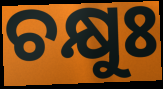
ଚକ୍ଷୁଃ